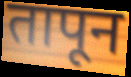
तापून